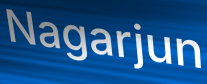
Nagarjun